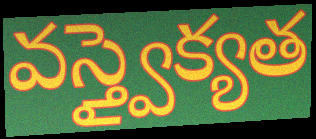
వస్త్వైక్యత